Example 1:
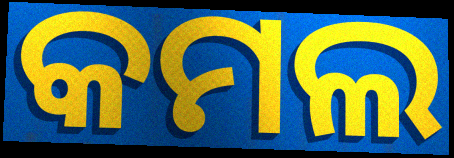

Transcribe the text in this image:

କମଲ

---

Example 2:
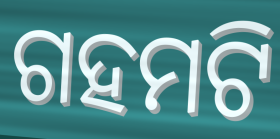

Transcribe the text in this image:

ଗହମଟି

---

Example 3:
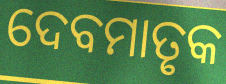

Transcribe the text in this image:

ଦେବମାତୃକ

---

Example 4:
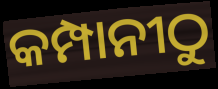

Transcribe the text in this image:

କମ୍ପାନୀଠୁ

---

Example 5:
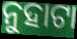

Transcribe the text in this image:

ନୁହାଟା